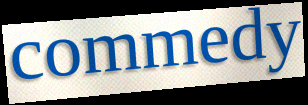
commedy